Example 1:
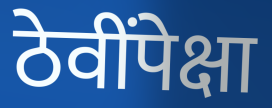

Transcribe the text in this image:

ठेवींपेक्षा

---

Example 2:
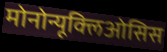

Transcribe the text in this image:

मोनोन्यूक्लिओसिस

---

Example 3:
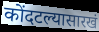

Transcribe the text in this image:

कोंदटल्यासारखं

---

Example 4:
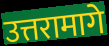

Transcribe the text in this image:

उत्तरामागे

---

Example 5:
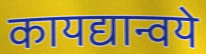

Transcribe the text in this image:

कायद्यान्वये